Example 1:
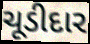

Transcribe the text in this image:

ચૂડીદાર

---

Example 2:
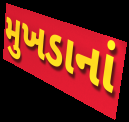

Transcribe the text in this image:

મુખડાનાં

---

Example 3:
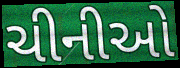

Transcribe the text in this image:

ચીનીઓ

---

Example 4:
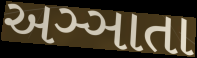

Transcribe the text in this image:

અઞ્ઞાતા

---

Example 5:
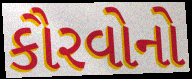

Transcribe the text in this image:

કૌરવોનો